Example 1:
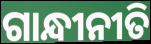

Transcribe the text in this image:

ଗାନ୍ଧୀନୀତି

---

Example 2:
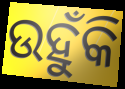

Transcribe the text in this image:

ଉହୁଁକି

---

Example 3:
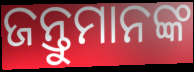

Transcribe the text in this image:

ଜନ୍ତୁମାନଙ୍କ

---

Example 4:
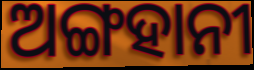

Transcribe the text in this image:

ଅଙ୍ଗହାନୀ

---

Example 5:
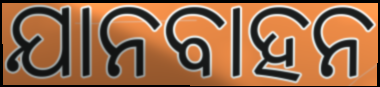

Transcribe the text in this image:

ଯାନବାହନ